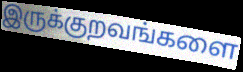
இருக்குறவங்களை